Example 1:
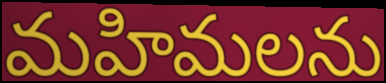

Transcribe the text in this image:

మహిమలను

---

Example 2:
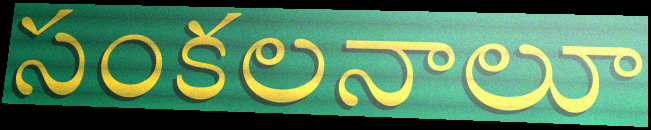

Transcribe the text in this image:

సంకలనాలూ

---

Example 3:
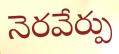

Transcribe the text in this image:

నెరవేర్పు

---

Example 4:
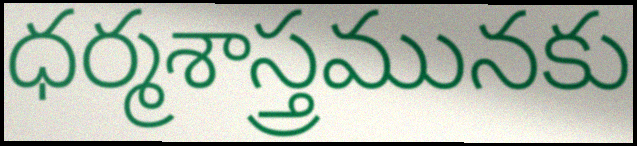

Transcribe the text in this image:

ధర్మశాస్త్రమునకు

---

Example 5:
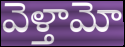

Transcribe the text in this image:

వెళ్తామో